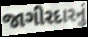
જાગીરદારનું